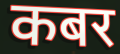
कबर